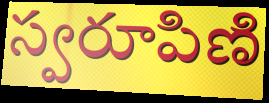
స్వరూపిణి